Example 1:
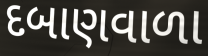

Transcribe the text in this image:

દબાણવાળા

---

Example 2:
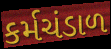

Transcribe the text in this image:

કર્મચંડાળ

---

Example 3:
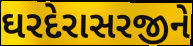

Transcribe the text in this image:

ઘરદેરાસરજીને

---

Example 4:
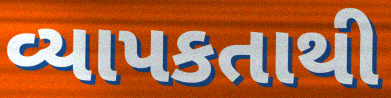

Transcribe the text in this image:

વ્યાપકતાથી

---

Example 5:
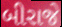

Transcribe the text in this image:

બીરાજે